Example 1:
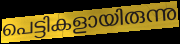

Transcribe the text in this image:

പെട്ടികളായിരുന്നു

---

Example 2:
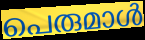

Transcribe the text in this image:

പെരുമാൾ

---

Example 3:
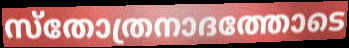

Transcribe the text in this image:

സ്തോത്രനാദത്തോടെ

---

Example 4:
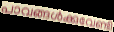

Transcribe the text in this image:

പാവങ്ങൾക്കുവേണ്ടി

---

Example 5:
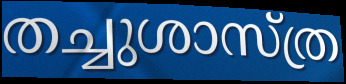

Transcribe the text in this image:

തച്ചുശാസ്ത്ര